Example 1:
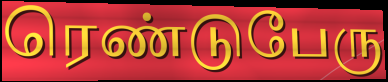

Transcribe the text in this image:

ரெண்டுபேரு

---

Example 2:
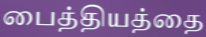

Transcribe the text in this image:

பைத்தியத்தை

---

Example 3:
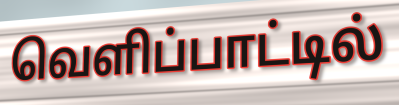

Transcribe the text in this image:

வெளிப்பாட்டில்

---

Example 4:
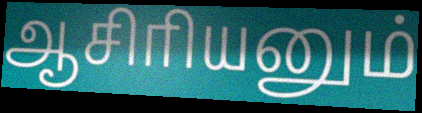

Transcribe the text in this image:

ஆசிரியனும்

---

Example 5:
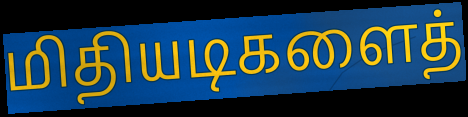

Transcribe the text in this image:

மிதியடிகளைத்